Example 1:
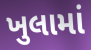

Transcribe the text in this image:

ખુલામાં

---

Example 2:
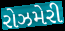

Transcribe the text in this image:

રોઝમેરી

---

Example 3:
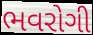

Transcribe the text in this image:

ભવરોગી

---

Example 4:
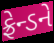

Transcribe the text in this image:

ફ્રેન્ડને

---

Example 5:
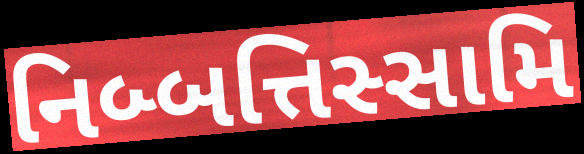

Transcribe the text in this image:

નિબ્બત્તિસ્સામિ